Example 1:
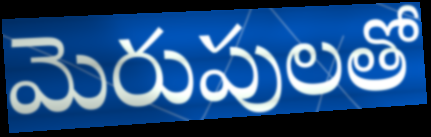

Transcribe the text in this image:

మెరుపులతో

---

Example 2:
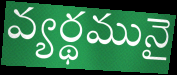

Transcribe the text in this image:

వ్యర్థమునై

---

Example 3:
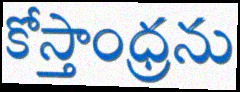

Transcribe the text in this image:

కోస్తాంధ్రను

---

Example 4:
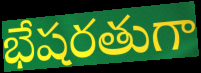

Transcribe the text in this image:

భేషరతుగా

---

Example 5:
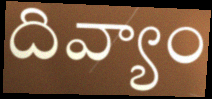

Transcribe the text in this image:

దివ్యాం